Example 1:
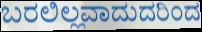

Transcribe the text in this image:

ಬರಲಿಲ್ಲವಾದುದರಿಂದ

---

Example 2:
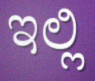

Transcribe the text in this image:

ಇಲ್ಲಿ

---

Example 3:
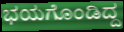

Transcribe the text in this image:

ಭಯಗೊಂಡಿದ್ದ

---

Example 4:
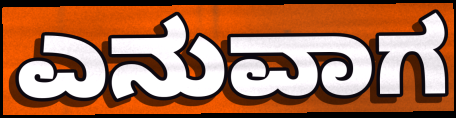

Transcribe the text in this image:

ಎನುವಾಗ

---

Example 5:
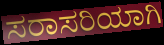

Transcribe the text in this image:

ಸರಾಸರಿಯಾಗಿ